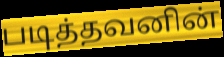
படித்தவனின்